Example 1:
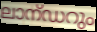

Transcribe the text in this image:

ലാന്ഡറും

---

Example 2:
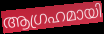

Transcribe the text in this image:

ആഗ്രഹമായി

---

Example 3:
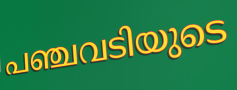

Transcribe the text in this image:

പഞ്ചവടിയുടെ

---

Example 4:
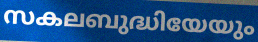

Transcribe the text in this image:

സകലബുദ്ധിയേയും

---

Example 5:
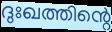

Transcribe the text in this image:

ദുഃഖത്തിന്റെ